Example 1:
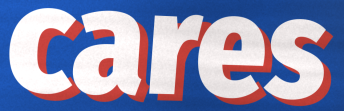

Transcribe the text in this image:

cares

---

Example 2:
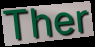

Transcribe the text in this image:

Ther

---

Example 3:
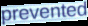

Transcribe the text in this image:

prevented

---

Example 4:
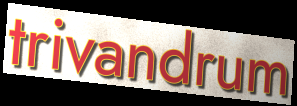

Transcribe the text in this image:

trivandrum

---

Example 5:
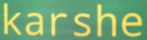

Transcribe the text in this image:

karshe